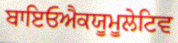
ਬਾਇਓਐਕਯੂਮੂਲੇਟਿਵ